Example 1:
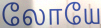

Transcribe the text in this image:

லோயே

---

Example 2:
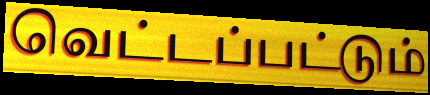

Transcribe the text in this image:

வெட்டப்பட்டும்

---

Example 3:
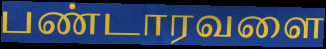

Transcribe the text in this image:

பண்டாரவளை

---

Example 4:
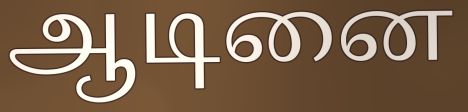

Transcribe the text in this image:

ஆடினை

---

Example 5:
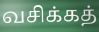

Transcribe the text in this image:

வசிக்கத்